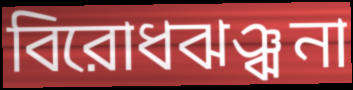
বিরোধঝঞ্ঝনা